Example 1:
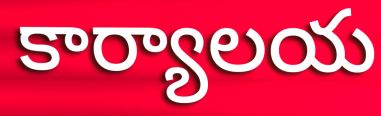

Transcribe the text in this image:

కార్యాలయ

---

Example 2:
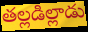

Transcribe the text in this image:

తల్లడిల్లాడు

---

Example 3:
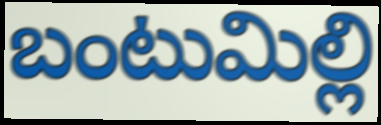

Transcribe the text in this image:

బంటుమిల్లి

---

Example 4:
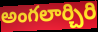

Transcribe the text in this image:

అంగలార్చిరి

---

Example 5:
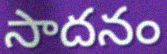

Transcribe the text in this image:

సాదనం